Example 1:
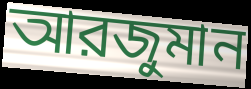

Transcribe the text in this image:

আরজুমান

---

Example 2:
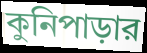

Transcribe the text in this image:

কুনিপাড়ার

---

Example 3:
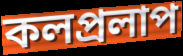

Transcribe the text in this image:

কলপ্রলাপ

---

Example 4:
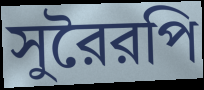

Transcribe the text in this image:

সুরৈরপি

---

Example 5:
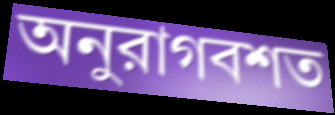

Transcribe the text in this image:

অনুরাগবশত